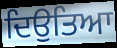
ਦਿਉਤਿਆ